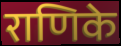
राणिके